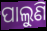
ପାଲୁଣି